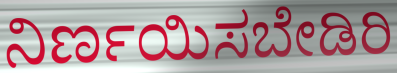
ನಿರ್ಣಯಿಸಬೇಡಿರಿ